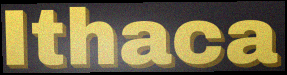
Ithaca